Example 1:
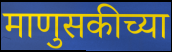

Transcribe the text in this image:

माणुसकीच्या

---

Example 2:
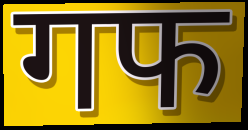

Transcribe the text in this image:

गफ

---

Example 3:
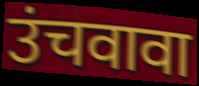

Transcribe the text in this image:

उंचवावा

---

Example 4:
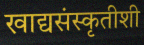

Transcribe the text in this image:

खाद्यसंस्कृतीशी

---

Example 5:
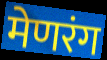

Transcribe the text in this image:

मेणरंग